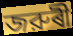
জৰুৰী